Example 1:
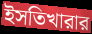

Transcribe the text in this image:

ইসতিখারার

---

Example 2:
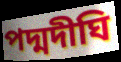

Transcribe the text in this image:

পদ্মদীঘি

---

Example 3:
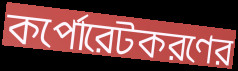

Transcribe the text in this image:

কর্পোরেটকরণের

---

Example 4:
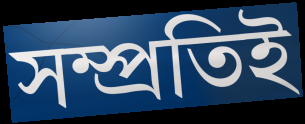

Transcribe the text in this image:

সম্প্রতিই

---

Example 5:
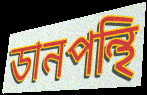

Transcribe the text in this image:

ডানপন্থি